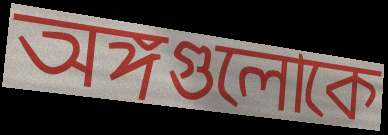
অঙ্গগুলোকে